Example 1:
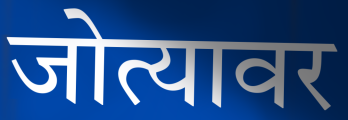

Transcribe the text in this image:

जोत्यावर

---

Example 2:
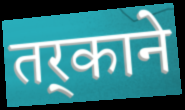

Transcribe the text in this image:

तर्काने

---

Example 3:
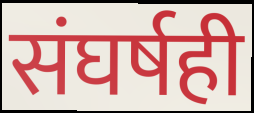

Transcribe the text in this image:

संघर्षही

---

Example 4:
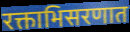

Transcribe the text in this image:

रक्ताभिसरणात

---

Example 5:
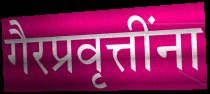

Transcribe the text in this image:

गैरप्रवृत्तींना